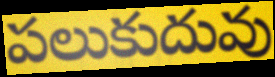
పలుకుదువు